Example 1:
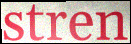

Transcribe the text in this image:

stren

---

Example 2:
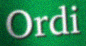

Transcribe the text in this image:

Ordi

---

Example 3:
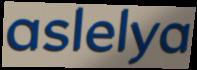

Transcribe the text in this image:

aslelya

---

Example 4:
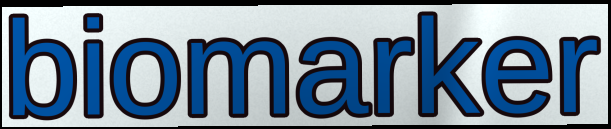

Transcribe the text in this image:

biomarker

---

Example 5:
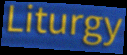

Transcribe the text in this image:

Liturgy